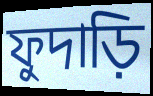
ফুদাড়ি